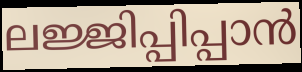
ലജ്ജിപ്പിപ്പാൻ